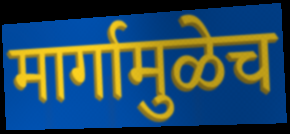
मार्गामुळेच